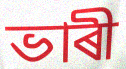
ভাৰী